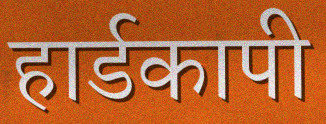
हार्डकापी